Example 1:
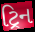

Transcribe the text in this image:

ટ્રિન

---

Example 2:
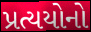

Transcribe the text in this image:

પ્રત્યયોનો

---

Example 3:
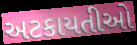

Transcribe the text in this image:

અટકાયતીઓ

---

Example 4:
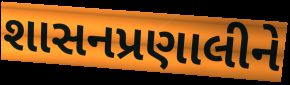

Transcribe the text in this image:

શાસનપ્રણાલીને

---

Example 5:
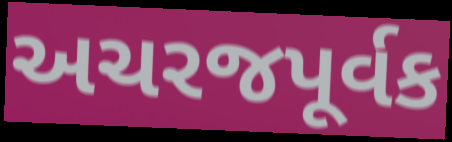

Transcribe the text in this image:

અચરજપૂર્વક